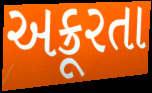
અક્રૂરતા